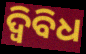
ଦ୍ୱିବିଧ